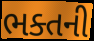
ભક્તની